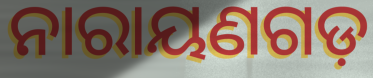
ନାରାୟଣଗଡ଼